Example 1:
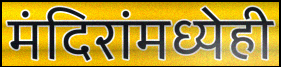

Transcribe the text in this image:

मंदिरांमध्येही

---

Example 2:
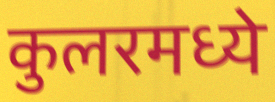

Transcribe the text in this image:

कुलरमध्ये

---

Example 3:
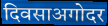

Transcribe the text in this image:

दिवसाअगोदर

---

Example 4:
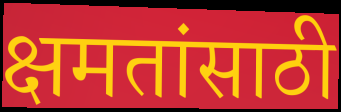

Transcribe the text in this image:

क्षमतांसाठी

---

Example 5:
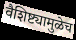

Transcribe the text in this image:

वैशिष्ट्यामुळेच